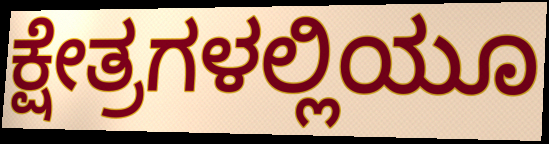
ಕ್ಷೇತ್ರಗಳಲ್ಲಿಯೂ